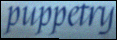
puppetry